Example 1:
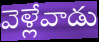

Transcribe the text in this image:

వెళ్లేవాడు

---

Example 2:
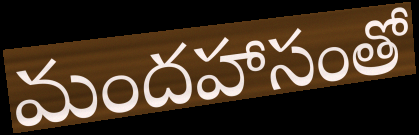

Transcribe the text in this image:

మందహాసంతో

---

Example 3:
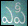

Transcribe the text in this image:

ఎపీ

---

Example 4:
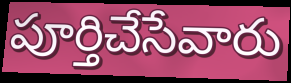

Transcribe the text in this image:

పూర్తిచేసేవారు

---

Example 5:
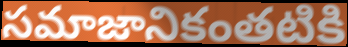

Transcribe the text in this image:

సమాజానికంతటికి